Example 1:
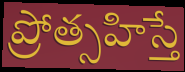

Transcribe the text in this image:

ప్రోత్సహిస్తే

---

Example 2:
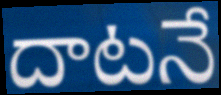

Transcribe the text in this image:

దాటనే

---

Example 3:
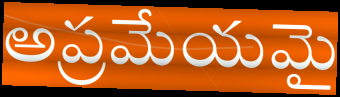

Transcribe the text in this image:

అప్రమేయమై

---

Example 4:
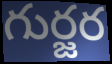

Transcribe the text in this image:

గుర్జర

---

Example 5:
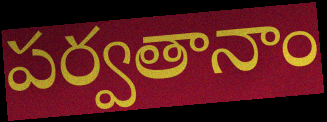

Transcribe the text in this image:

పర్వతానాం